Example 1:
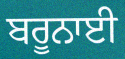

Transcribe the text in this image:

ਬਰੂਨਾਈ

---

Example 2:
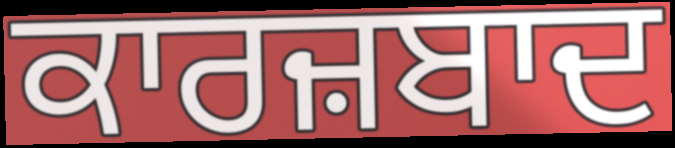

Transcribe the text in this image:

ਕਾਰਜ਼ਬਾਦ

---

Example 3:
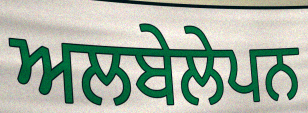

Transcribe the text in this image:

ਅਲਬੇਲੇਪਨ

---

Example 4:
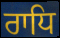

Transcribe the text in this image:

ਰਾਧਿ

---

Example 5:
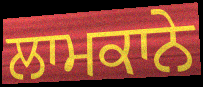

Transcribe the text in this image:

ਲਾਮਕਾਨੇ